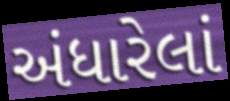
અંધારેલાં